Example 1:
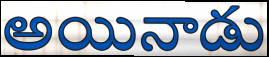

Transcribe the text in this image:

అయినాడు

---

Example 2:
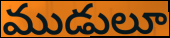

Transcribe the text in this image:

ముడులూ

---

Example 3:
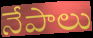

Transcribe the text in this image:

నేపాలు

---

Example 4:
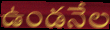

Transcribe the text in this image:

ఉండనేల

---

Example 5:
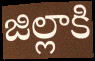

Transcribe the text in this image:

జిల్లాకి